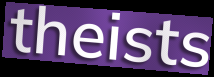
theists